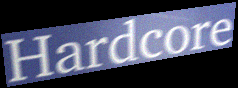
Hardcore